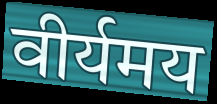
वीर्यमय